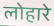
लोहारे